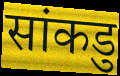
सांकडु